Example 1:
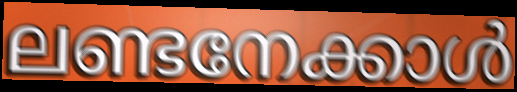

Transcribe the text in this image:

ലണ്ടനേക്കാൾ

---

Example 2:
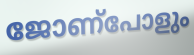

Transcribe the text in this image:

ജോണ്പോളും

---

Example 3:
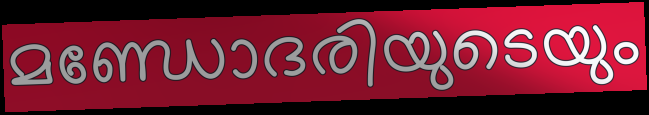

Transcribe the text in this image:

മണ്ഡോദരിയുടെയും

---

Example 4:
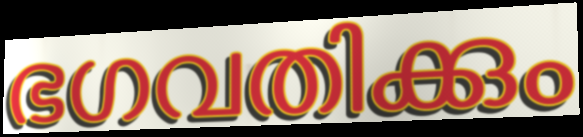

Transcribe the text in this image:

ഭഗവതിക്കും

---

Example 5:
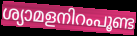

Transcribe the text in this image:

ശ്യാമളനിറംപൂണ്ട